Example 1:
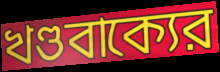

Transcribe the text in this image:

খণ্ডবাক্যের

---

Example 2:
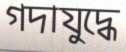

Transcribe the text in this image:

গদাযুদ্ধে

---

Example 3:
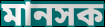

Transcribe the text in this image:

মানসক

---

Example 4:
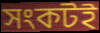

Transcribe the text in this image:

সংকটই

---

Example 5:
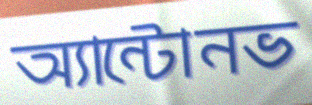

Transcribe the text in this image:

অ্যান্টোনভ